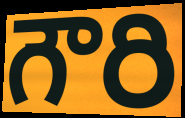
గౌరి